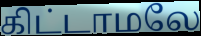
கிட்டாமலே